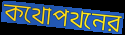
কথোপথনের